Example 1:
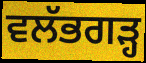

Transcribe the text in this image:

ਵਲੱਭਗੜ੍ਹ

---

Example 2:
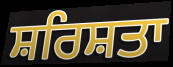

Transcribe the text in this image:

ਸ਼ਰਿਸ਼ਤਾ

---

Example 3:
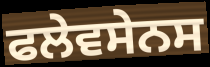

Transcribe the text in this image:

ਫਲੇਵਸੇਨਸ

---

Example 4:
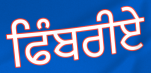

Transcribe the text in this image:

ਫਿੰਬਰੀਏ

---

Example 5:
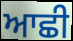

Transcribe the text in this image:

ਆਛੀ